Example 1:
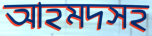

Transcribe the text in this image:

আহমদসহ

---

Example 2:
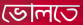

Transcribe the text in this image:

ভোলতে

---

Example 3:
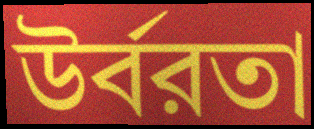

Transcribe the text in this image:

উর্বরতা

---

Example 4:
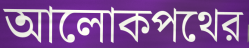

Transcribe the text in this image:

আলোকপথের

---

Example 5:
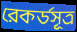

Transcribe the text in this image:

রেকর্ডসূত্র